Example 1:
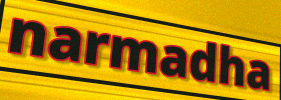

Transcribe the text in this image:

narmadha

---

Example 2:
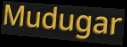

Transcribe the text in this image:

Mudugar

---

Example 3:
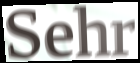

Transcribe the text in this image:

Sehr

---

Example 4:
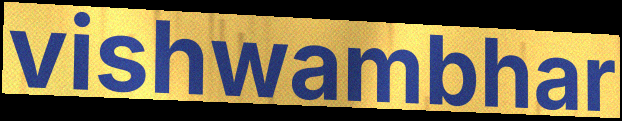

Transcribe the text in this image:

vishwambhar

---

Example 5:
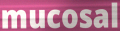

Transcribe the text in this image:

mucosal